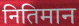
नितिमान